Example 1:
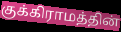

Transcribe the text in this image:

குக்கிராமத்தின்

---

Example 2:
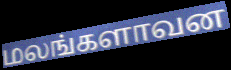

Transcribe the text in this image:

மலங்களாவன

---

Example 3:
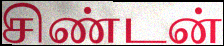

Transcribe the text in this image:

சிண்டன்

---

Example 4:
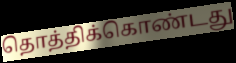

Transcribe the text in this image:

தொத்திக்கொண்டது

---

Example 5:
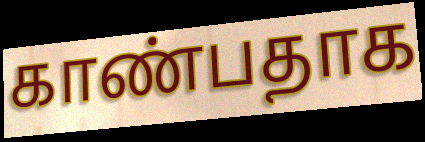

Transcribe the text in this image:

காண்பதாக